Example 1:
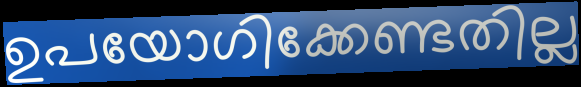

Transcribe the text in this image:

ഉപയോഗിക്കേണ്ടതില്ല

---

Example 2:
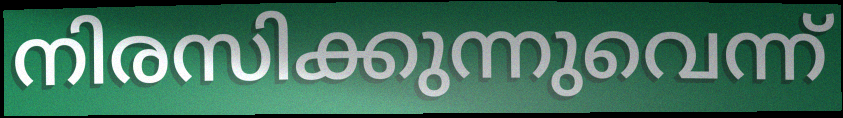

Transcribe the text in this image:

നിരസിക്കുന്നുവെന്ന്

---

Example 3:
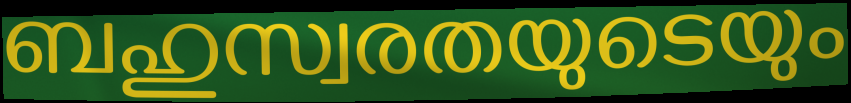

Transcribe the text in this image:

ബഹുസ്വരതയുടെയും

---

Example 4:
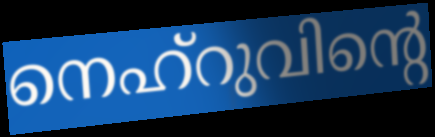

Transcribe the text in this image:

നെഹ്റുവിന്റെ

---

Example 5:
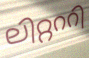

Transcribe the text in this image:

ലിറ്റററി